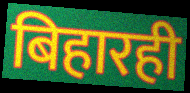
बिहारही